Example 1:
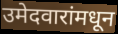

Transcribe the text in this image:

उमेदवारांमधून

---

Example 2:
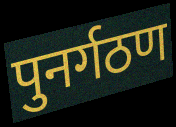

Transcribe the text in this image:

पुनर्गठण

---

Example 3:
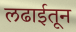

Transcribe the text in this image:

लढाईतून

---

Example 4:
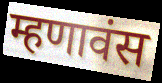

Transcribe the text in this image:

म्हणावंस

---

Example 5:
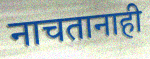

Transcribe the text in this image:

नाचतानाही